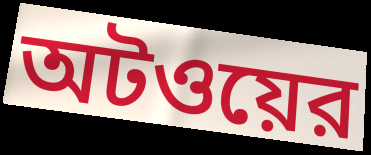
অটওয়ের